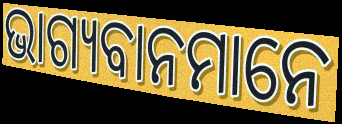
ଭାଗ୍ୟବାନମାନେ